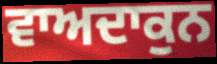
ਵਾਅਦਾਕੁਨ